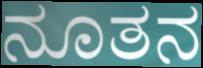
ನೂತನ